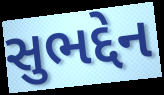
સુભદ્દેન